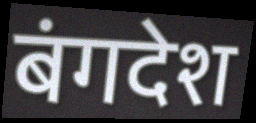
बंगदेश